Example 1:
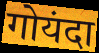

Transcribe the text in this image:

गोयंदा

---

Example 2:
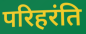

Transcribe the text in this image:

परिहरंति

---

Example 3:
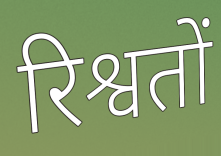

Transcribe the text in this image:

रिश्वतों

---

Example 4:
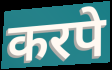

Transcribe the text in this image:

करपे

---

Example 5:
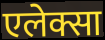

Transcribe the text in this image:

एलेक्सा